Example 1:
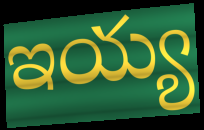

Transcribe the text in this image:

ఇయ్య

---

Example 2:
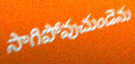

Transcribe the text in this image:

సాగిపోవుచుండెను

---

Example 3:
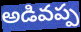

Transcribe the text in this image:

అడివప్ప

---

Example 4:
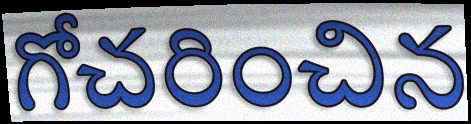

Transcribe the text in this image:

గోచరించిన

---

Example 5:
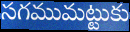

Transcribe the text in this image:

సగముమట్టుకు